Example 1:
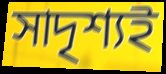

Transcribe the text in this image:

সাদৃশ্যই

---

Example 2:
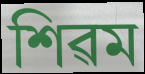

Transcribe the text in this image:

শিৱম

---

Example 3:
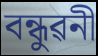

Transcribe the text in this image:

বন্ধুৱনী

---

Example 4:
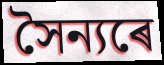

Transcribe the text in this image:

সৈন্যৰে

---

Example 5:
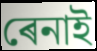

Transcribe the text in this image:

ৰেনাই